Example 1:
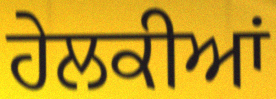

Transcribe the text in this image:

ਹੇਲਕੀਆਂ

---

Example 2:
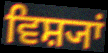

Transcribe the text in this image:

ਵਿਸ਼੍ਯਾਂ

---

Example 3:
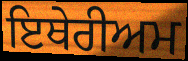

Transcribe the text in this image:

ਇਥੇਰੀਅਮ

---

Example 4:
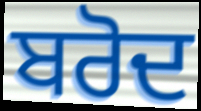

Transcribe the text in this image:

ਬਰੋਦ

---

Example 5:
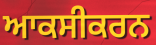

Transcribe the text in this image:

ਆਕਸੀਕਰਨ